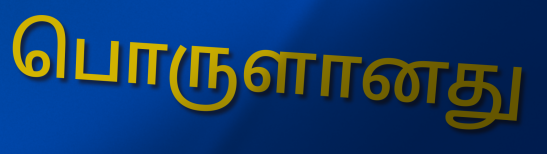
பொருளானது